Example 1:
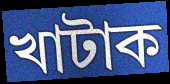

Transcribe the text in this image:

খাটাক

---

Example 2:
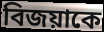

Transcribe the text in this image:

বিজয়াকে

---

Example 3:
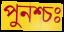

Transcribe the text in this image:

পুনশ্চঃ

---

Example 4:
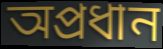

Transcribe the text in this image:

অপ্রধান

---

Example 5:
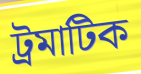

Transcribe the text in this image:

ট্রমাটিক